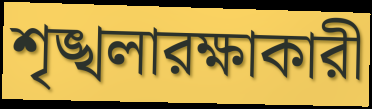
শৃঙ্খলারক্ষাকারী